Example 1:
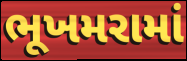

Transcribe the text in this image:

ભૂખમરામાં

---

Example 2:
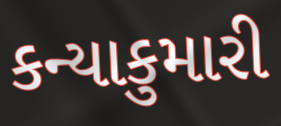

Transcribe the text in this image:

કન્યાકુમારી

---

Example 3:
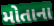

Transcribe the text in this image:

મોતાના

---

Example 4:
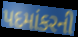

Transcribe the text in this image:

પદમાંકરની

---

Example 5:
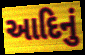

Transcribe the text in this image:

આદિનું